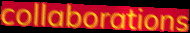
collaborations